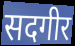
सदगीर